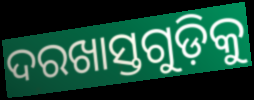
ଦରଖାସ୍ତଗୁଡ଼ିକୁ